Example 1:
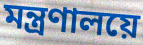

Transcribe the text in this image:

মন্ত্ৰণালয়ে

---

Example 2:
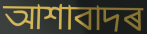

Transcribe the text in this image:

আশাবাদৰ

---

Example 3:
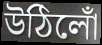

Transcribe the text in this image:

উঠিলোঁ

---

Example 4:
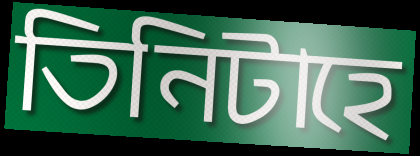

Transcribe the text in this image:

তিনিটাহে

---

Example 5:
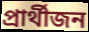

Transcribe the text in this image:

প্ৰাৰ্থীজন